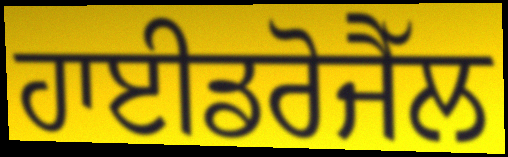
ਹਾਈਡਰੋਜੈੱਲ